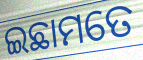
ଇଛାମତେ